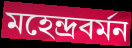
মহেন্দ্রবর্মন